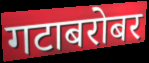
गटाबरोबर